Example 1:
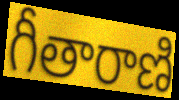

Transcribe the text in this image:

గీతారాణి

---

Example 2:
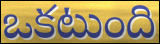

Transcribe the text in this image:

ఒకటుంది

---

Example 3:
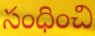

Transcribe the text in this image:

సంధించి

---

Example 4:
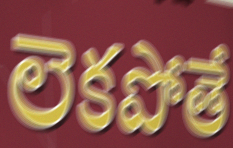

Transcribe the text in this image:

లెకపోతే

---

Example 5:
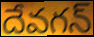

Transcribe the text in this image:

దేవగన్